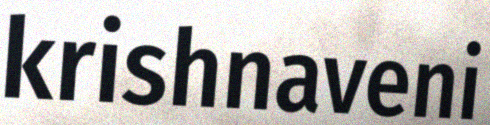
krishnaveni